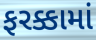
ફરક્કામાં